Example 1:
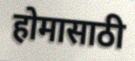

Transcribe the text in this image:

होमासाठी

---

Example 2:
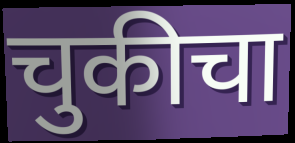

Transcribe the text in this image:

चुकीचा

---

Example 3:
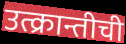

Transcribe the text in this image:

उत्क्रान्तीची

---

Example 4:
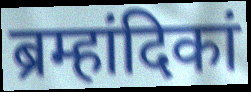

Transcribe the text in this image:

ब्रम्हांदिकां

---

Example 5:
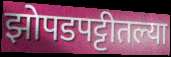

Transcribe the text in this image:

झोपडपट्टीतल्या